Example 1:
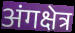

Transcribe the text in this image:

अंगक्षेत्र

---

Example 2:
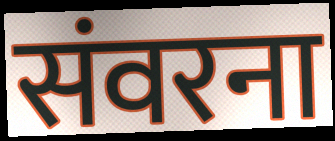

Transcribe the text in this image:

संवरना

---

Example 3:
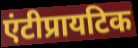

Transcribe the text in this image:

एंटीप्रायटिक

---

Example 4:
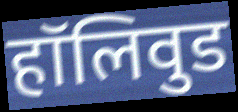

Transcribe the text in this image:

हॉलिवुड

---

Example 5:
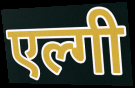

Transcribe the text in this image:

एल्गी